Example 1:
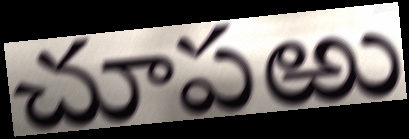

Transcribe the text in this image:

చూపఱు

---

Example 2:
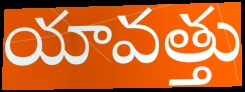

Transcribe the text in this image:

యావత్తు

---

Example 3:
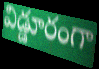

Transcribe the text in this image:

విడ్డూరంగా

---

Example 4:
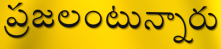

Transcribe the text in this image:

ప్రజలంటున్నారు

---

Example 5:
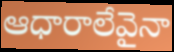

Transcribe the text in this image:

ఆధారాలేవైనా